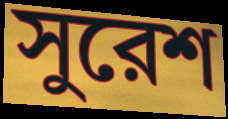
সুরেশ